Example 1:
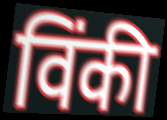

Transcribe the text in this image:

विंकी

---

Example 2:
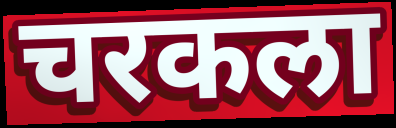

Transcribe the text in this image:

चरकला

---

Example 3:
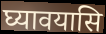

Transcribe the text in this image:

घ्यावयासि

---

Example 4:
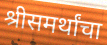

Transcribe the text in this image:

श्रीसमर्थांचा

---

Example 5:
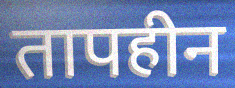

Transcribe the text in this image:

तापहीन